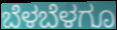
ಬೆಳಬೆಳಗೂ